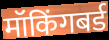
मॉकिंगबर्ड